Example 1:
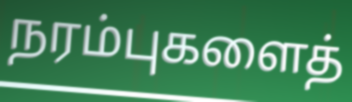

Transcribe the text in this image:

நரம்புகளைத்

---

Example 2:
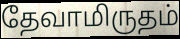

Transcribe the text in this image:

தேவாமிருதம்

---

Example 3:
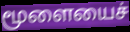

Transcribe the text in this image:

மூளையைச்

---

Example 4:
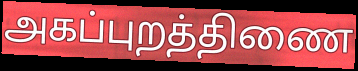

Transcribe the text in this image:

அகப்புறத்திணை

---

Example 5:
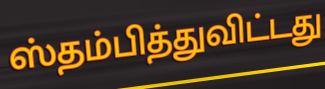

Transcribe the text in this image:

ஸ்தம்பித்துவிட்டது